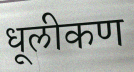
धूलीकण